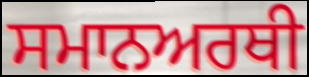
ਸਮਾਨਅਰਥੀ